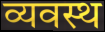
व्यवस्थ